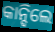
କାନ୍ଦିଲେ